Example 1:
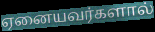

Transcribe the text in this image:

ஏனையவர்களால்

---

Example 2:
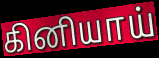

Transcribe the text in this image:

கினியாய்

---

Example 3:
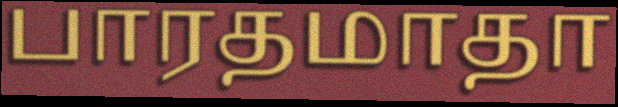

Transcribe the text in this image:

பாரதமாதா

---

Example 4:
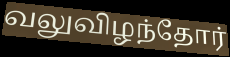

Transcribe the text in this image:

வலுவிழந்தோர்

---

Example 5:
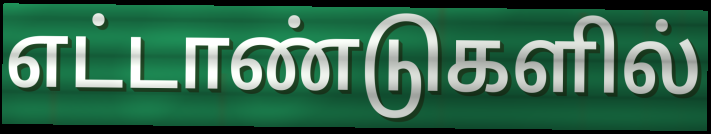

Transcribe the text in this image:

எட்டாண்டுகளில்